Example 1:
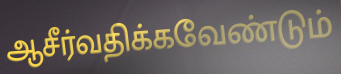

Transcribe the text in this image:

ஆசீர்வதிக்கவேண்டும்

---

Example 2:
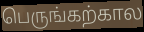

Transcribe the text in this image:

பெருங்கற்கால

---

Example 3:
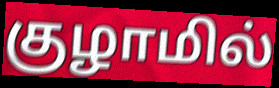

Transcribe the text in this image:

குழாமில்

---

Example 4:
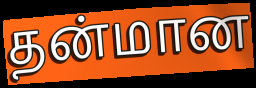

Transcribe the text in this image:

தன்மான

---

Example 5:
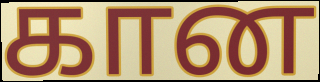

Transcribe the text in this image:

கான